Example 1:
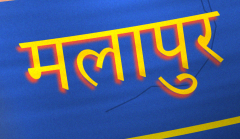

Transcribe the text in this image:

मलापुर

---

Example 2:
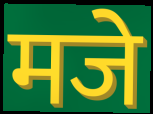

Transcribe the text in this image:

मजे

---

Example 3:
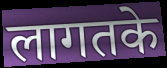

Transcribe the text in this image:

लागतके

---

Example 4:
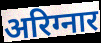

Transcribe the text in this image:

अरिग्नार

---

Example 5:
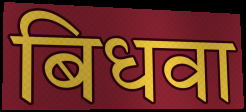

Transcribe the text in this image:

बिधवा